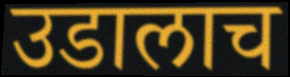
उडालाच